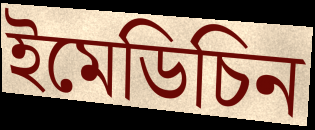
ইমেডিচিন